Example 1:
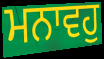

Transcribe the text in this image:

ਮਨਾਵਹੁ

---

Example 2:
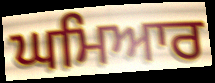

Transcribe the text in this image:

ਘਮਿਆਰ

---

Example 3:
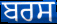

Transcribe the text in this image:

ਬਰਸ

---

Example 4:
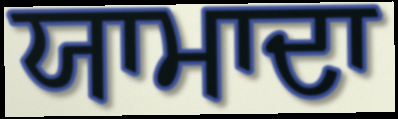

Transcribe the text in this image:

ਯਾਮਾਦਾ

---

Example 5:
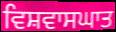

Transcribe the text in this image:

ਵਿਸ਼ਵਾਸਘਾਤ